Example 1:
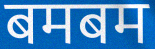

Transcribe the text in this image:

बमबम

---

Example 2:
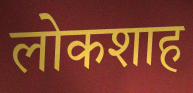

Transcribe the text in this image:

लोकशाह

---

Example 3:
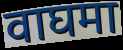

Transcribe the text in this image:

वाघमा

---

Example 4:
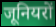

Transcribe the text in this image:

जूनियरों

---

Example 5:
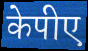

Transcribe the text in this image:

केपीए